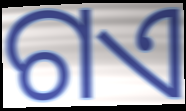
ଗଏ